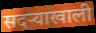
सदऱ्याखाली